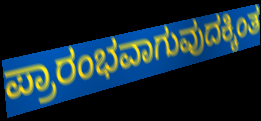
ಪ್ರಾರಂಭವಾಗುವುದಕ್ಕಿಂತ